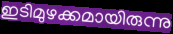
ഇടിമുഴക്കമായിരുന്നു